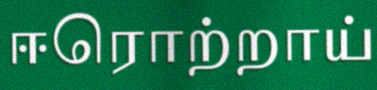
ஈரொற்றாய்